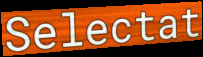
Selectat